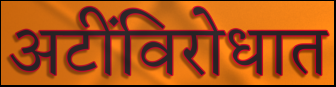
अटींविरोधात